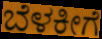
ಬೆಳಕೀಗೆ